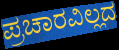
ಪ್ರಚಾರವಿಲ್ಲದ